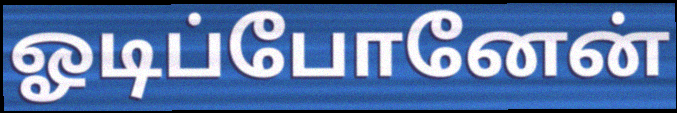
ஓடிப்போனேன்